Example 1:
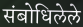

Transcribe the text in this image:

संबोधिलेले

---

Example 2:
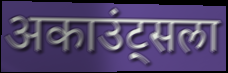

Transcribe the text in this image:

अकाउंट्सला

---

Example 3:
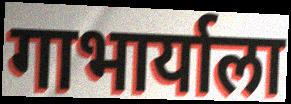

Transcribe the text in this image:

गाभार्याला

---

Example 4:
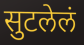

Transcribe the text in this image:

सुटलेलं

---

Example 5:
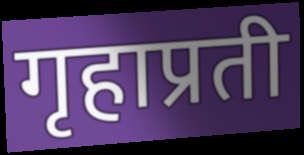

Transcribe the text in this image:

गृहाप्रती